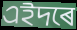
এইদৰে